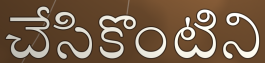
చేసికొంటిని